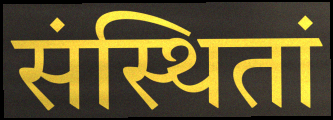
संस्थितां